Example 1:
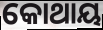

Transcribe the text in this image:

କୋଥାୟ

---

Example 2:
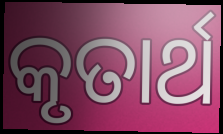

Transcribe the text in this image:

କୃତାର୍ଥ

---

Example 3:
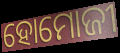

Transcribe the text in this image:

ହୋମୋଜୀ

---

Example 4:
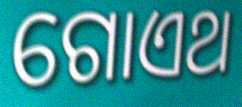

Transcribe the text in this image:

ଗୋଏଥ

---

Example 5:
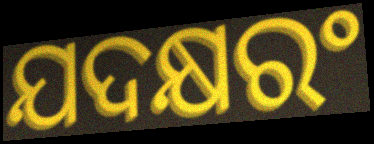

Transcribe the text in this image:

ଯଦକ୍ଷରଂ